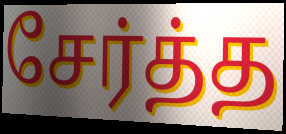
சேர்த்த